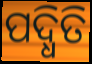
ପଦ୍ଧିତି